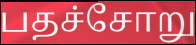
பதச்சோறு